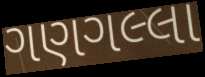
ગણગલ્લા